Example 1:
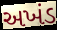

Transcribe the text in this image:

અખંડ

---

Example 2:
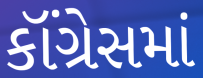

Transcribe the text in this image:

કૉંગ્રેસમાં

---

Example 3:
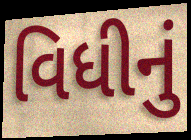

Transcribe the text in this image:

વિધીનું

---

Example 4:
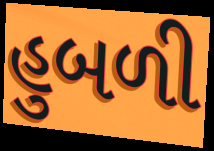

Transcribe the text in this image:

હુબળી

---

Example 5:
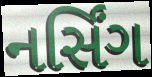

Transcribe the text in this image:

નર્સિંગ